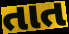
તાત